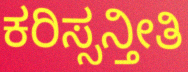
ಕರಿಸ್ಸನ್ತೀತಿ